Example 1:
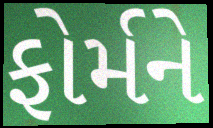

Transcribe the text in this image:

ફોર્મને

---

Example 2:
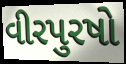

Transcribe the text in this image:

વીરપુરષો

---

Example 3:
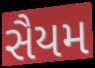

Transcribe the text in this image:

સૈયમ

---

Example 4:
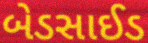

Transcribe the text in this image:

બેડસાઈડ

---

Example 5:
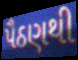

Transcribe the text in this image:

પૈઠણથી